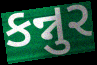
કન્નુર